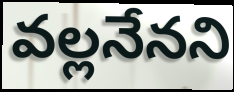
వల్లనేనని